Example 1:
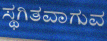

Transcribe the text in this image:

ಸ್ಥಗಿತವಾಗುವ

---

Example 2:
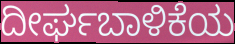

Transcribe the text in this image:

ದೀರ್ಘಬಾಳಿಕೆಯ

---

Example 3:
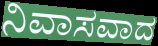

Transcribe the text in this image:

ನಿವಾಸವಾದ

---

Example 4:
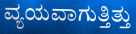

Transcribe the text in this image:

ವ್ಯಯವಾಗುತ್ತಿತ್ತು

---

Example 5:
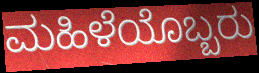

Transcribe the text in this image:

ಮಹಿಳೆಯೊಬ್ಬರು